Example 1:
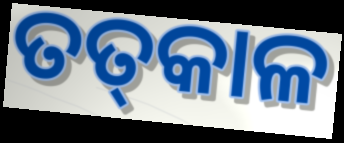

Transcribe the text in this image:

ତତ୍‌କାଳ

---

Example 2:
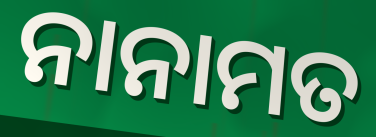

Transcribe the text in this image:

ନାନାମତ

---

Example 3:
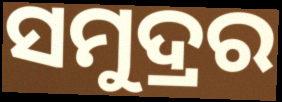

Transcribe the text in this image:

ସମୁଦ୍ରର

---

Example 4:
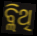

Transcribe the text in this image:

ବ୍ଲିଥି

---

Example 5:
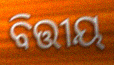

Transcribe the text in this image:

ବିତ୍ତୀୟ